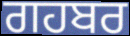
ਗਹਬਰ